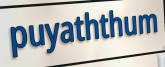
puyaththum